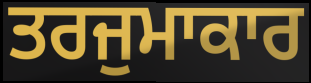
ਤਰਜੁਮਾਕਾਰ